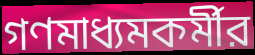
গণমাধ্যমকর্মীর